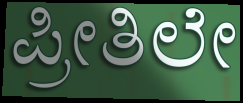
ಪ್ರೀತಿಲೇ